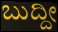
ಬುದ್ದೀ